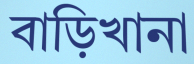
বাড়িখানা